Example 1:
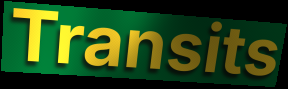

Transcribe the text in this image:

Transits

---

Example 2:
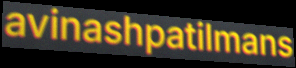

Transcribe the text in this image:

avinashpatilmans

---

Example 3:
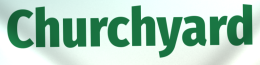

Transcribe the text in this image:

Churchyard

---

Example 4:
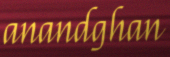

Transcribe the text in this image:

anandghan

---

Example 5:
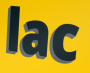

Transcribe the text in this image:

lac